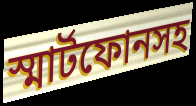
স্মার্টফোনসহ